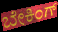
ಬೇಕಿಂಗ್